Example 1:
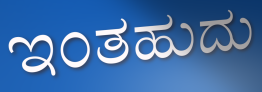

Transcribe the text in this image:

ಇಂತಹುದು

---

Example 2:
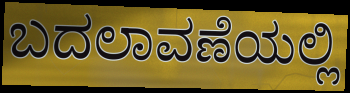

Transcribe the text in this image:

ಬದಲಾವಣೆಯಲ್ಲಿ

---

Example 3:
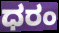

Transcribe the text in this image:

ಧರಂ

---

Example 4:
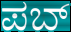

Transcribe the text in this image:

ಪಬ್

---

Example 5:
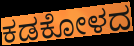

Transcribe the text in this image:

ಕಡಕೋಳದ